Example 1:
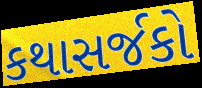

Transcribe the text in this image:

કથાસર્જકો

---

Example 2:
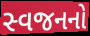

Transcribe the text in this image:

સ્વજનનો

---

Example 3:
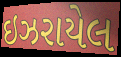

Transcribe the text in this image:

ઇઝરાયેલ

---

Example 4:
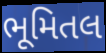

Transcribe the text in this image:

ભૂમિતલ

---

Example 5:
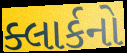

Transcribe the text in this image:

ક્લાર્કનો